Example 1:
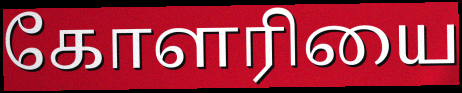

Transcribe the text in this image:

கோளரியை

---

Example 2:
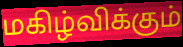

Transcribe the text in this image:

மகிழ்விக்கும்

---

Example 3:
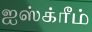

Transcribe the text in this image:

ஐஸ்க்ரீம்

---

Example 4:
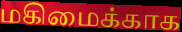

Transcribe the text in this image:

மகிமைக்காக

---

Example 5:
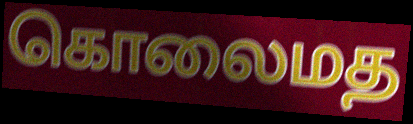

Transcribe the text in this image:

கொலைமத